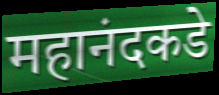
महानंदकडे